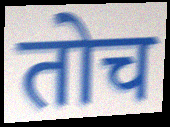
तोच